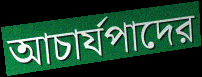
আচার্যপাদের